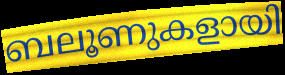
ബലൂണുകളായി